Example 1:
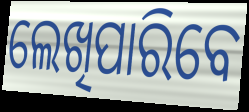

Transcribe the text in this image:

ଲେଖିପାରିବେ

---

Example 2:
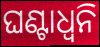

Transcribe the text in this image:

ଘଣ୍ଟାଧ୍ୱନି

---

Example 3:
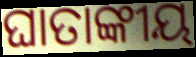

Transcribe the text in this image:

ଘାତାଙ୍କୀୟ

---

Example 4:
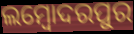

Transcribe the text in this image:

ଲମ୍ବୋଦରପୁର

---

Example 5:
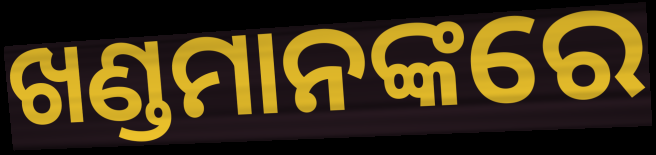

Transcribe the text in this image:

ଖଣ୍ଡମାନଙ୍କରେ